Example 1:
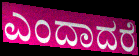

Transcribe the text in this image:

ಎಂದಾದರೆ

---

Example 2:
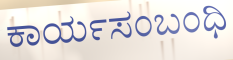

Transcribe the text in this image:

ಕಾರ್ಯಸಂಬಂಧಿ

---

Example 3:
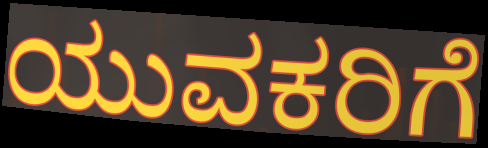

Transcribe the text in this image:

ಯುವಕರಿಗೆ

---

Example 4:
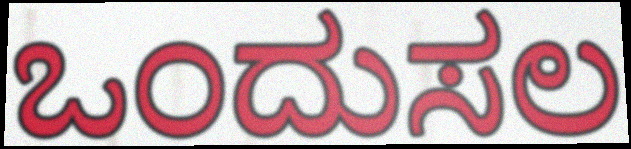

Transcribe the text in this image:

ಒಂದುಸಲ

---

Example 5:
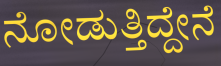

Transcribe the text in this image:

ನೋಡುತ್ತಿದ್ದೇನೆ